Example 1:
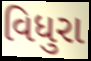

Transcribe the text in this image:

વિધુરા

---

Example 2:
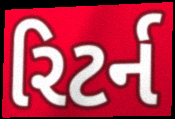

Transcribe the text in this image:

રિટર્ન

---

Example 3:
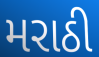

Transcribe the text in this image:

મરાઠી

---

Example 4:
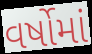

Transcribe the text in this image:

વર્ષોમાં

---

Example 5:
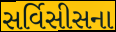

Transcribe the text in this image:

સર્વિસીસના